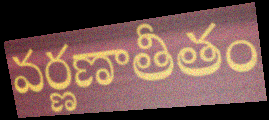
వర్ణణాతీతం